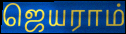
ஜெயராம்